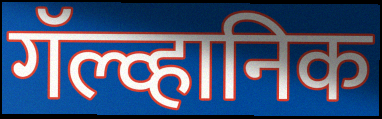
गॅल्व्हानिक